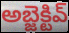
అబ్జెక్టివ్